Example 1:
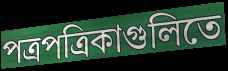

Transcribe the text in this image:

পত্রপত্রিকাগুলিতে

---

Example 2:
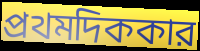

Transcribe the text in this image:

প্রথমদিককার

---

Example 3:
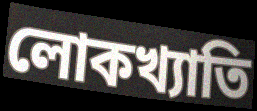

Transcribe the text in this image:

লোকখ্যাতি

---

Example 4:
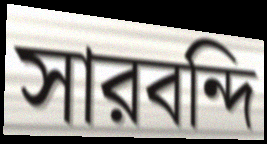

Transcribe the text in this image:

সারবন্দি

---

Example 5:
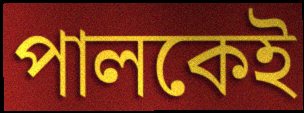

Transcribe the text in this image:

পালকেই